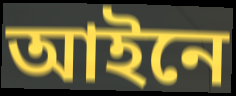
আইনে